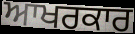
ਆਖਰਕਾਰ